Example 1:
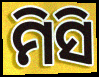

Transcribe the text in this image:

ମିସି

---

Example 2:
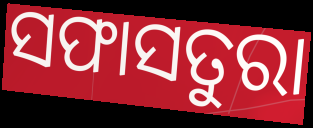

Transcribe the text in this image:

ସଫାସତୁରା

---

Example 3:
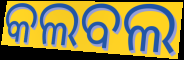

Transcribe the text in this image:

କଲବଲ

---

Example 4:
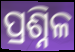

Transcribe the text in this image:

ପ୍ରଶ୍ନିଳ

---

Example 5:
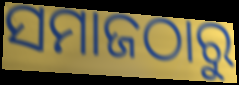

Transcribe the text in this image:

ସମାଜଠାରୁ